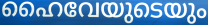
ഹൈവേയുടെയും